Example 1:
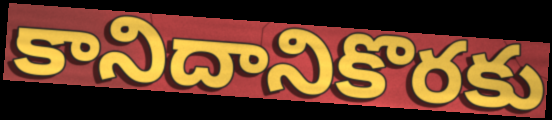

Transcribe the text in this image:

కానిదానికొరకు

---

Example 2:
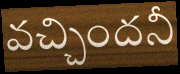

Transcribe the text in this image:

వచ్చిందనీ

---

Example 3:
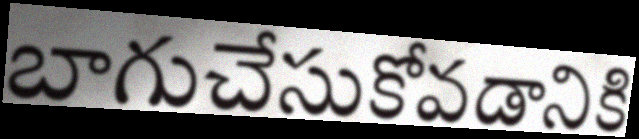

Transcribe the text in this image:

బాగుచేసుకోవడానికి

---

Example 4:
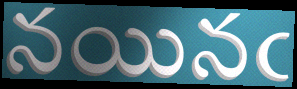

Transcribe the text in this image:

నయినఁ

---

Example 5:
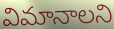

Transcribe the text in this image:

విమానాలని